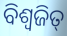
ବିଶ୍ୱଜିତ୍